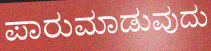
ಪಾರುಮಾಡುವುದು